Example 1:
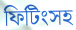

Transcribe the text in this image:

ফিটিংসহ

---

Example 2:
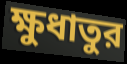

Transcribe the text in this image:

ক্ষুধাতুর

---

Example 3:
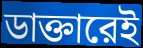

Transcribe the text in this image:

ডাক্তারেই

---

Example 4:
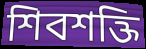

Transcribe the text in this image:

শিবশক্তি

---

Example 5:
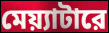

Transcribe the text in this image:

মেয়্যাটারে